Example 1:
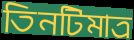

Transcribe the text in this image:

তিনটিমাত্র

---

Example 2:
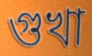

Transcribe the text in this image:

গুখা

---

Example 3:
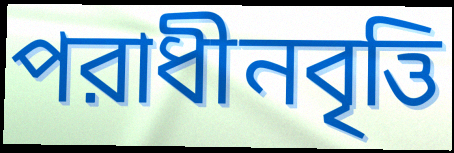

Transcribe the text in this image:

পরাধীনবৃত্তি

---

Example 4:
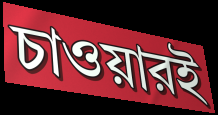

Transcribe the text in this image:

চাওয়ারই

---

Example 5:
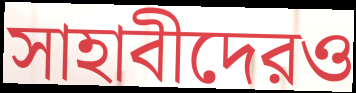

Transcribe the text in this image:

সাহাবীদেরও